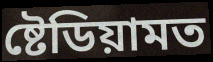
ষ্টেডিয়ামত